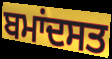
ਬਮਾਂਦਸਤ